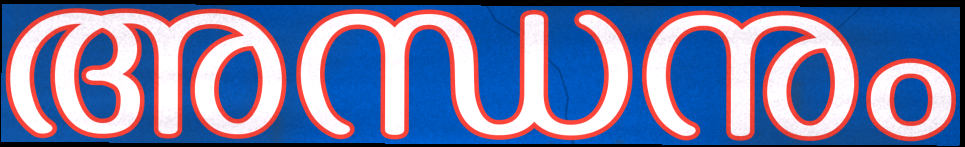
അന്ധനും